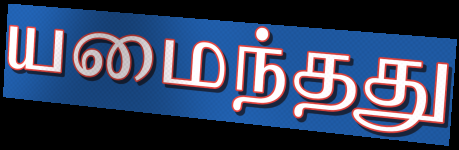
யமைந்தது